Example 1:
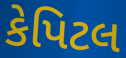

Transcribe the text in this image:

કેપિટલ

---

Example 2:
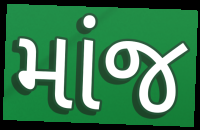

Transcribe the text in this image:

માંજ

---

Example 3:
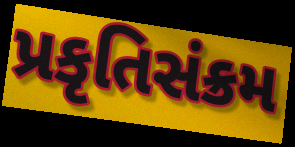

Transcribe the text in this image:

પ્રકૃતિસંક્રમ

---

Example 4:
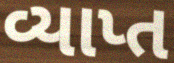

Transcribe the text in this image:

વ્યાપ્ત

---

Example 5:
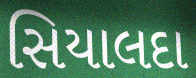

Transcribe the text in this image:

સિયાલદા